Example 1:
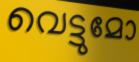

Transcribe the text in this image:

വെട്ടുമോ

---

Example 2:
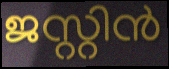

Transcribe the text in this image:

ജസ്റ്റിൻ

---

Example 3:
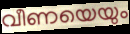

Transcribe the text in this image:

വീണയെയും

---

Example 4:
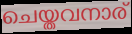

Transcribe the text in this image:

ചെയ്തവനാര്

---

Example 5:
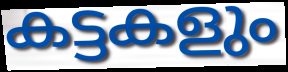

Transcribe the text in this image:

കട്ടകളും